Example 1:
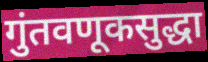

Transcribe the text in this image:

गुंतवणूकसुद्धा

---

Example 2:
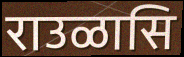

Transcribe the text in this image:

राउळासि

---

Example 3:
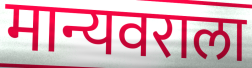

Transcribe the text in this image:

मान्यवराला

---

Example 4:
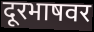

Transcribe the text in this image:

दूरभाषवर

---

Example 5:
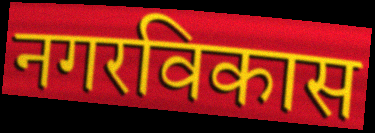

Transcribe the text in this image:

नगरविकास